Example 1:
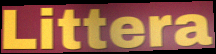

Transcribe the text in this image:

Littera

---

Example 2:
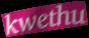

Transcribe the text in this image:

kwethu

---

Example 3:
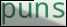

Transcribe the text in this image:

puns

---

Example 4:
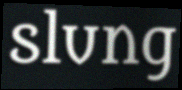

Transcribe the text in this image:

slung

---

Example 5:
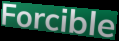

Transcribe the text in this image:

Forcible